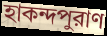
হাকন্দপুরাণ